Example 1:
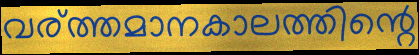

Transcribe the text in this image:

വര്ത്തമാനകാലത്തിന്റെ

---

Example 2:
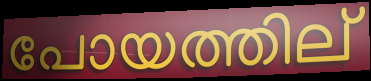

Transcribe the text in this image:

പോയത്തില്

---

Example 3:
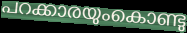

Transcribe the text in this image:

പറക്കാരയുംകൊണ്ടു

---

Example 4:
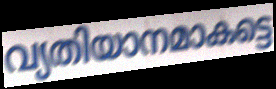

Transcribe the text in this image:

വ്യതിയാനമാകട്ടെ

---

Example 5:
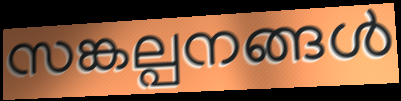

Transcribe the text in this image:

സങ്കല്പനങ്ങൾ